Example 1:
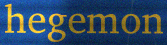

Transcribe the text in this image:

hegemon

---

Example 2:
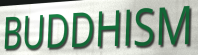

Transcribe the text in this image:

BUDDHISM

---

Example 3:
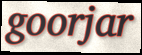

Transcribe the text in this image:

goorjar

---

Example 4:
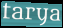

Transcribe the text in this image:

tarya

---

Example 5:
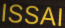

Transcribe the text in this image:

ISSAI